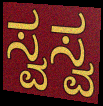
ಸ್ವಸ್ವ